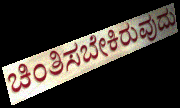
ಚಿಂತಿಸಬೇಕಿರುವುದು